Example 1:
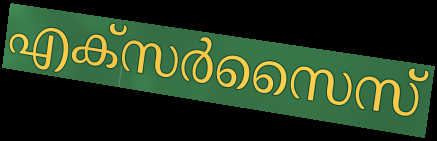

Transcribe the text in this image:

എക്സർസൈസ്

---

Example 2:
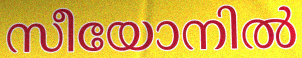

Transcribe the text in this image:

സീയോനിൽ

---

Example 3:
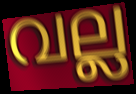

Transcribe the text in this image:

വല്ല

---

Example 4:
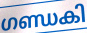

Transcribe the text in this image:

ഗണ്ഡകി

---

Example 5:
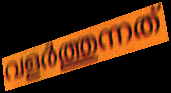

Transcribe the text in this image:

വളർത്തുന്നത്